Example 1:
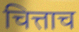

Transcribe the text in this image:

चित्ताच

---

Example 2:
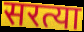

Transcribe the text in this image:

सरत्या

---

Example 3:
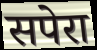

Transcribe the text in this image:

सपेरा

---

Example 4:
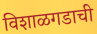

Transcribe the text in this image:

विशाळगडाची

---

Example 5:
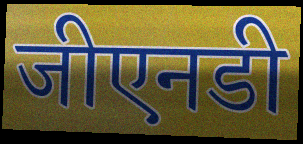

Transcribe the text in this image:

जीएनडी